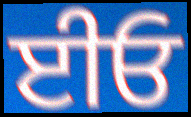
ਈਓ